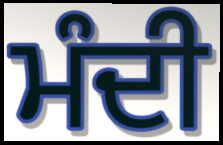
ਮੰਦੀ